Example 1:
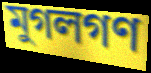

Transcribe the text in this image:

মুগলগণ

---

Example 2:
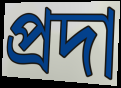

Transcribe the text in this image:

প্রদা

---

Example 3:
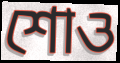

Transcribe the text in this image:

শোও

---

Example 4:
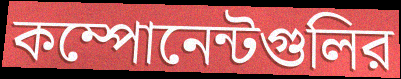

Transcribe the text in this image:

কম্পোনেন্টগুলির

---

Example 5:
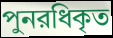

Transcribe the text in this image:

পুনরধিকৃত